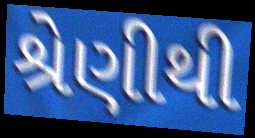
શ્રેણીથી